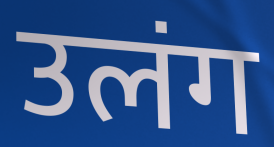
उलंग